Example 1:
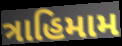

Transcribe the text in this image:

ત્રાહિમામ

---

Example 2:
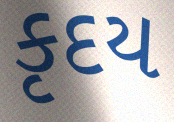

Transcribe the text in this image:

કૃદય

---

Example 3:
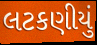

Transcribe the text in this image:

લટકણીયું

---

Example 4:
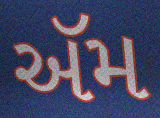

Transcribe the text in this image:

ઍમ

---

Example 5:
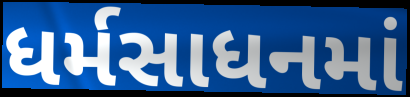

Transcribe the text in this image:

ધર્મસાધનમાં